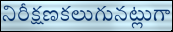
నిరీక్షణకలుగునట్లుగా